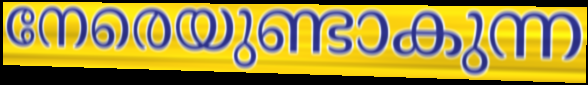
നേരെയുണ്ടാകുന്ന